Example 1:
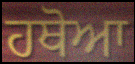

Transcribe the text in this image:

ਹਥੋਆ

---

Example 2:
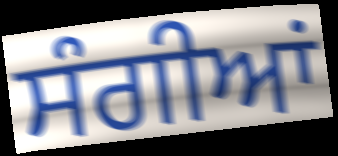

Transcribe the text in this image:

ਸੰਗੀਆਂ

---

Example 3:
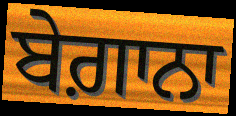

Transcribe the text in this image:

ਬੇਗ਼ਾਨਾ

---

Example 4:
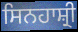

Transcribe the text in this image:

ਸਿਨਹਾਸ਼੍ਰੀ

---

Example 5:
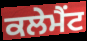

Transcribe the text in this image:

ਕਲੇਮੈਂਟ